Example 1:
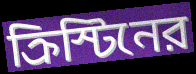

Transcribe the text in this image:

ক্রিস্টিনের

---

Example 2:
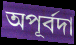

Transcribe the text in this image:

অপূর্বদা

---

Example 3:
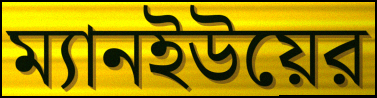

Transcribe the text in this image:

ম্যানইউয়ের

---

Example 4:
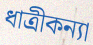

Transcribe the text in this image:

ধাত্রীকন্যা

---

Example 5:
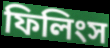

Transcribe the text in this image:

ফিলিংস